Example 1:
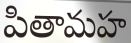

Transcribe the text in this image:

పితామహ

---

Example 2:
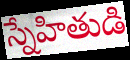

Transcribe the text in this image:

స్నేహితుడి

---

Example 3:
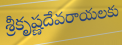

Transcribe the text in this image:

శ్రీకృష్ణదేవరాయలకు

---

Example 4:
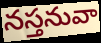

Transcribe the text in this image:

నస్తనువా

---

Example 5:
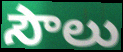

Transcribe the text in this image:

సౌలు